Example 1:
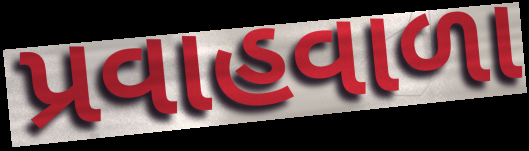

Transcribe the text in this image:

પ્રવાહવાળા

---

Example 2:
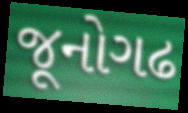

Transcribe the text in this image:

જૂનોગઢ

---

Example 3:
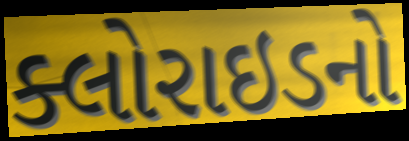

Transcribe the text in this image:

ક્લોરાઇડનો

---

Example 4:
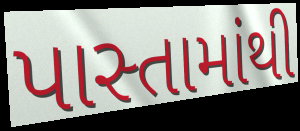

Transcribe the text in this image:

પાસ્તામાંથી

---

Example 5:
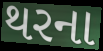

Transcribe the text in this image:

થરના